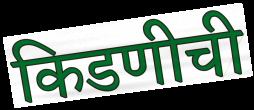
किडणीची